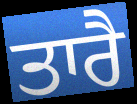
ਤਾਰੈ